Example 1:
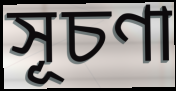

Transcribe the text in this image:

সূচণা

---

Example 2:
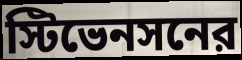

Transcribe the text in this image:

স্টিভেনসনের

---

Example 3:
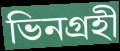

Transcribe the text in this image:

ভিনগ্রহী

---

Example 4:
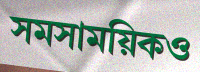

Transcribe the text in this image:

সমসাময়িকও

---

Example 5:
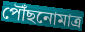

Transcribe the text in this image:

পৌঁছনোমাত্র